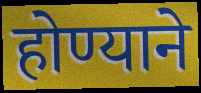
होण्याने